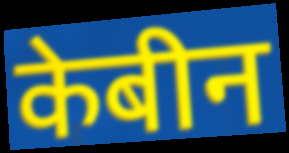
केबीन